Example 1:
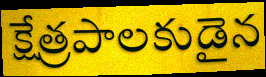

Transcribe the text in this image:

క్షేత్రపాలకుడైన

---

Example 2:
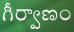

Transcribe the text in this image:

గీర్వాణం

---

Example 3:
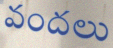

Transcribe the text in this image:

వందలు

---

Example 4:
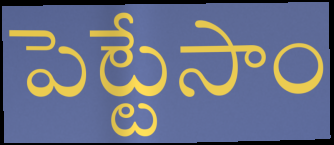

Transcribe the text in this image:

పెట్టేసాం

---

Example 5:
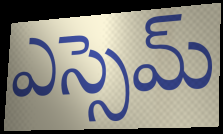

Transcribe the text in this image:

ఎస్సెమ్